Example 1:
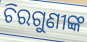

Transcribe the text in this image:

ଚିରଗୁଣୀଙ୍କ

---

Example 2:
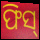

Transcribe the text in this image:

ଫିସ୍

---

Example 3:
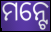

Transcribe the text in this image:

ମନ୍ଟେ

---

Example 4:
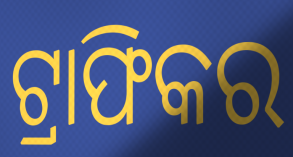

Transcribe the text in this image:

ଟ୍ରାଫିକର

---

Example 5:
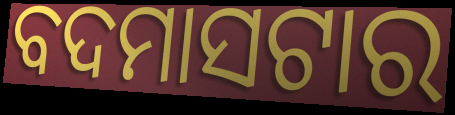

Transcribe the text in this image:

ବଦମାସଟାର